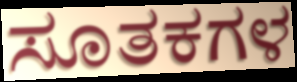
ಸೂತಕಗಳ